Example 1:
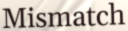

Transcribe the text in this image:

Mismatch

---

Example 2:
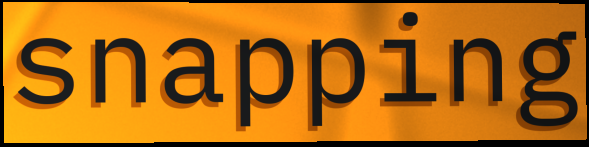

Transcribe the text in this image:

snapping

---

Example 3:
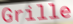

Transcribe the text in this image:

Grille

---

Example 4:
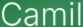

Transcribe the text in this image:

Camil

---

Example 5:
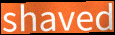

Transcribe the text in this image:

shaved